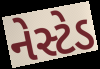
નેસ્ટેડ